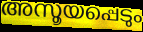
അസൂയപ്പെടും